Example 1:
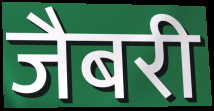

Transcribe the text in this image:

जैबरी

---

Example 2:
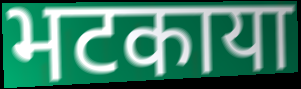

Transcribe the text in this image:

भटकाया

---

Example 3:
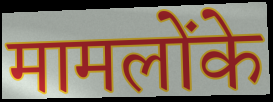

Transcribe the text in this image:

मामलोंके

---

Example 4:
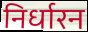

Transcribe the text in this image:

निर्धारन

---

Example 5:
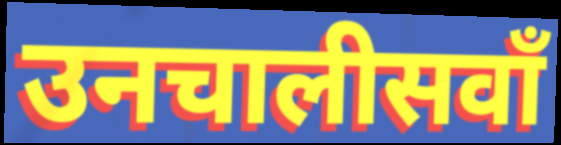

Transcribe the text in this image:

उनचालीसवाँ